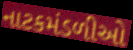
નાટકમંડળીઓ